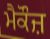
ਮੈਕੌਜ਼